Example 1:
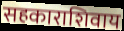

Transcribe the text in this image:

सहकाराशिवाय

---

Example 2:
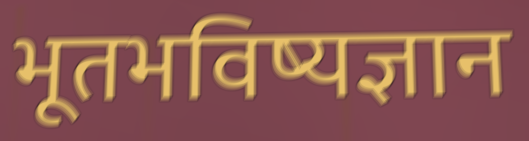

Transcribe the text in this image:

भूतभविष्यज्ञान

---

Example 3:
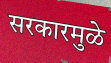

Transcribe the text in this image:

सरकारमुळे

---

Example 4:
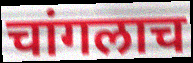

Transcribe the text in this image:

चांगलाच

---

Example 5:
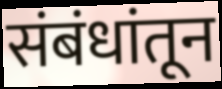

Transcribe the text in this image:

संबंधांतून